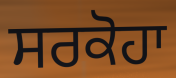
ਸਰਕੋਹਾ